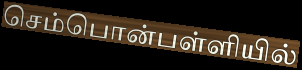
செம்பொன்பள்ளியில்